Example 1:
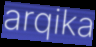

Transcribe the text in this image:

arqika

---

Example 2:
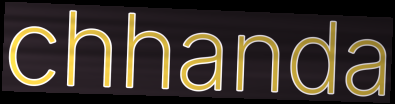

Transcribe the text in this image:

chhanda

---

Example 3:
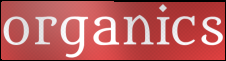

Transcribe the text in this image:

organics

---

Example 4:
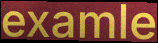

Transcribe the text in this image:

examle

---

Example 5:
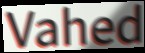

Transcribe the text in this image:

Vahed